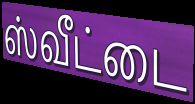
ஸ்வீட்டை